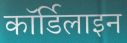
कॉर्डिलाइन